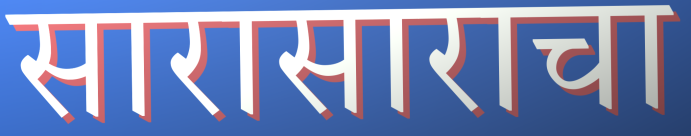
सारासाराचा